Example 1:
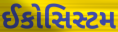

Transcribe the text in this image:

ઈકોસિસ્ટમ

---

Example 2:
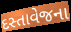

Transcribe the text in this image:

દસ્તાવેજના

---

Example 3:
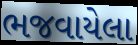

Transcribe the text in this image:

ભજવાયેલા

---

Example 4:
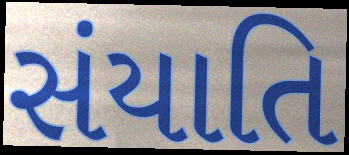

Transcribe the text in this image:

સંયાતિ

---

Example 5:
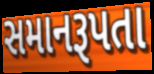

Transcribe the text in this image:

સમાનરૂપતા